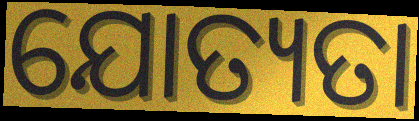
ଯୋତ୍ୟତା